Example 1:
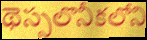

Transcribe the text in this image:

థెస్సలొనీకలోని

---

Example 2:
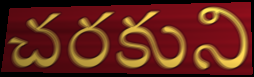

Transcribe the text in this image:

చరకుని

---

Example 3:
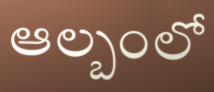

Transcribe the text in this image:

ఆల్బంలో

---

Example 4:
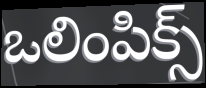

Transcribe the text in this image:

ఒలింపిక్స్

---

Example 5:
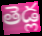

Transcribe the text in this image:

తెడ్ల